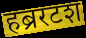
हब्ररटश